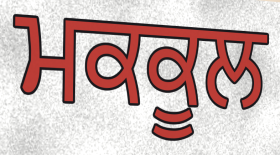
ਮਕਕੂਲ